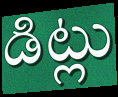
డిట్లు